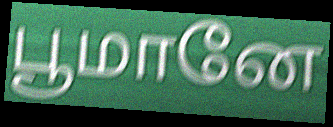
பூமானே